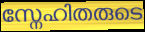
സ്നേഹിതരുടെ